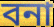
বনা